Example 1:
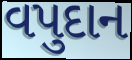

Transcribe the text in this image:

વપુદાન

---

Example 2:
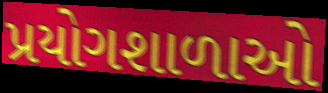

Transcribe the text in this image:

પ્રયોગશાળાઓ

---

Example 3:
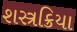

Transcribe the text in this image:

શસ્ત્રક્રિયા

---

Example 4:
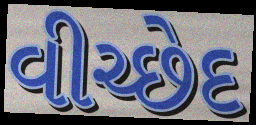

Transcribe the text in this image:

વીચ્છેદ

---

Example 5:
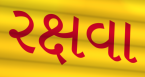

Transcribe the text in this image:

રક્ષવા